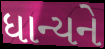
ધાન્યને